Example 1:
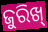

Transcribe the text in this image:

ଜୁରିଖ୍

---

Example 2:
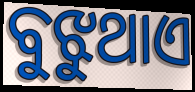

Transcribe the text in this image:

ବୁଝୁଥାଏ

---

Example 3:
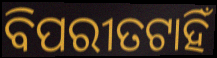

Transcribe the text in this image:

ବିପରୀତଟାହିଁ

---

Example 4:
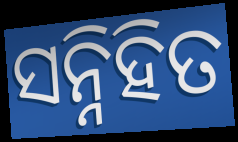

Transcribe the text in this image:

ସନ୍ନିହିତ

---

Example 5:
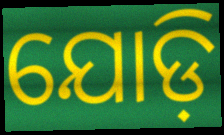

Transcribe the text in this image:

ଯୋଡ଼ି